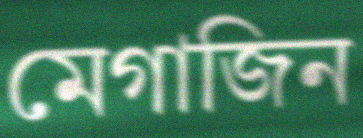
মেগাজিন